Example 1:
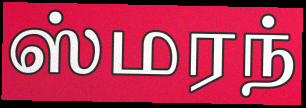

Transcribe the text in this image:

ஸ்மரந்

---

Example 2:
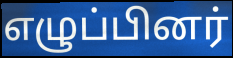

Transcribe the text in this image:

எழுப்பினர்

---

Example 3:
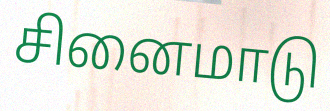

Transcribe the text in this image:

சினைமாடு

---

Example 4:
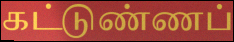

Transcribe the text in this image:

கட்டுண்ணப்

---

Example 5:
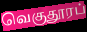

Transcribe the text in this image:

வெகுதூரப்